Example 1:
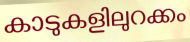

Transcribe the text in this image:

കാടുകളിലുറക്കം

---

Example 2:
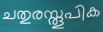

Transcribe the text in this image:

ചതുരസ്തൂപിക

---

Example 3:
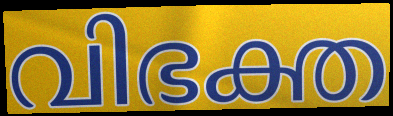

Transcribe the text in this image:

വിഭക്ത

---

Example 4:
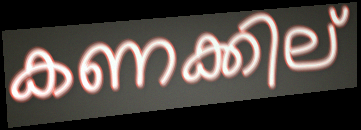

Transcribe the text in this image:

കണക്കില്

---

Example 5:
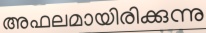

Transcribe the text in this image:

അഫലമായിരിക്കുന്നു